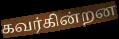
கவர்கின்றன